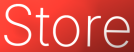
Store